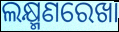
ଲକ୍ଷ୍ମଣରେଖା